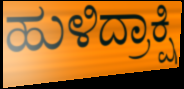
ಹುಳಿದ್ರಾಕ್ಷಿ